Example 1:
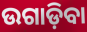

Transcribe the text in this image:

ଉଗାଡ଼ିବା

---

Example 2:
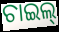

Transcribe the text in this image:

ଚାଇଲ୍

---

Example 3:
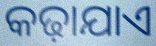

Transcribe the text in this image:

କଢ଼ାଯାଏ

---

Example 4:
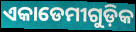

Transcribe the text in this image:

ଏକାଡେମୀଗୁଡ଼ିକ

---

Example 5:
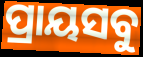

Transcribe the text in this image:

ପ୍ରାୟସବୁ